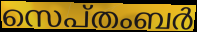
സെപ്‌തംബർ